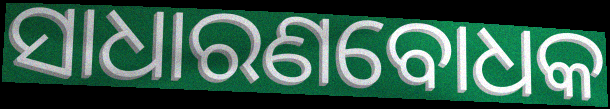
ସାଧାରଣବୋଧକ